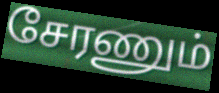
சேரணும்